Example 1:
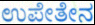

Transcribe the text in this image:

ಉಪೇತೇನ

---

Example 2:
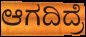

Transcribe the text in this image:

ಆಗದಿದ್ರೆ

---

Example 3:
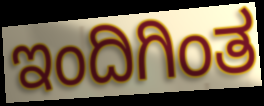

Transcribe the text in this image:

ಇಂದಿಗಿಂತ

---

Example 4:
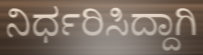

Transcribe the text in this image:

ನಿರ್ಧರಿಸಿದ್ದಾಗಿ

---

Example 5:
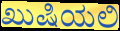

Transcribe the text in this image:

ಖುಷಿಯಲಿ